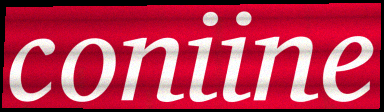
coniine